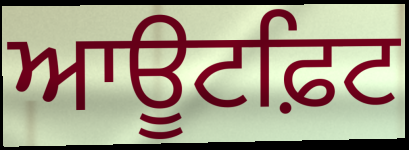
ਆਊਟਫ਼ਿਟ